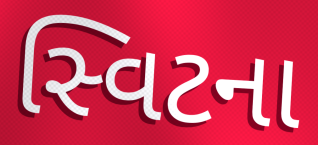
સ્વિટના